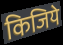
किजिये